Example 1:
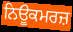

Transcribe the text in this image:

ਨਿਊਕਮਰਜ਼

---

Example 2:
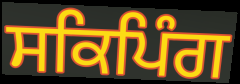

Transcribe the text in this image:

ਸਕਿਪਿੰਗ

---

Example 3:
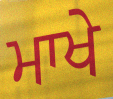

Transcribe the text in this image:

ਮਾਖੇ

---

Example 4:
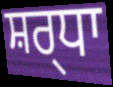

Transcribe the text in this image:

ਸ਼ਰ੍ਧਾ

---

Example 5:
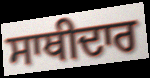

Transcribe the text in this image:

ਸਾਥੀਦਾਰ